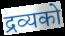
द्रव्यको